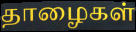
தாழைகள்